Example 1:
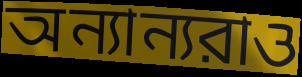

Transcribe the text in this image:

অন্যান্যরাও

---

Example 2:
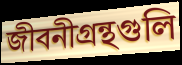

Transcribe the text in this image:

জীবনীগ্রন্থগুলি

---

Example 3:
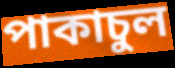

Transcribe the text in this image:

পাকাচুল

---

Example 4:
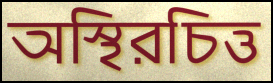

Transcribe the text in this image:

অস্থিরচিত্ত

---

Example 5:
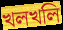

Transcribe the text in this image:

খলখলি